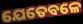
ଯେତେବଳେ